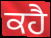
ਕਹੈ